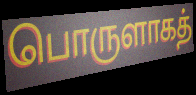
பொருளாகத்